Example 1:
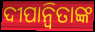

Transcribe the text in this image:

ଦୀପାନ୍ୱିତାଙ୍କ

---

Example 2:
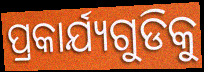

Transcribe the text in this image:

ପ୍ରକାର୍ଯ୍ୟଗୁଡିକୁ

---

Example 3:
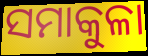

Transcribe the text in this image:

ସମାକୁଳା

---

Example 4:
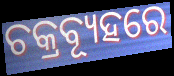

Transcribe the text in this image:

ଚକ୍ରବ୍ୟୂହରେ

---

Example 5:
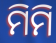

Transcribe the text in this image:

ମିମି